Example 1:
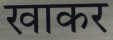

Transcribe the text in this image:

खाकर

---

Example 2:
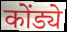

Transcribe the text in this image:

कोंड्ये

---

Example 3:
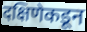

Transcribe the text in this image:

दक्षिणेकडून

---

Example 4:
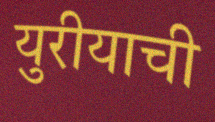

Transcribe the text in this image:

युरीयाची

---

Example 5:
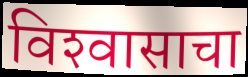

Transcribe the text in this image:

विश्वासाचा